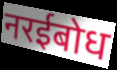
नरईबोध